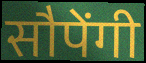
सौपेंगी